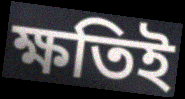
ক্ষতিই